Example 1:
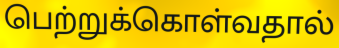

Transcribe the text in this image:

பெற்றுக்கொள்வதால்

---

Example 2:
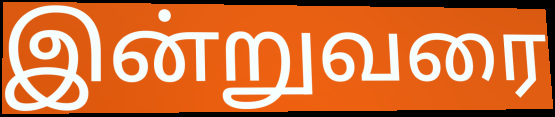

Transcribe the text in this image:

இன்றுவரை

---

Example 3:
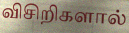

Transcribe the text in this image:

விசிறிகளால்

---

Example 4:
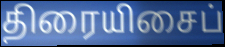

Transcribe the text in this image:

திரையிசைப்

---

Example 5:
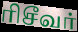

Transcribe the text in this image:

ரிசீவர்